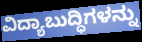
ವಿದ್ಯಾಬುದ್ಧಿಗಳನ್ನು